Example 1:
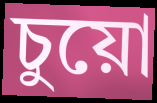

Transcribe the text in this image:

চুয়ো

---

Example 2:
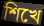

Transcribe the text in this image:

শিখে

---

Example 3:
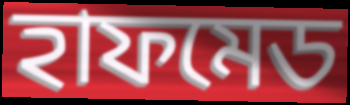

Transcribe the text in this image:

হাফমেড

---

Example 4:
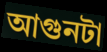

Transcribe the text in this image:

আগুনটা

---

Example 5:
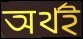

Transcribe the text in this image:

অর্থই